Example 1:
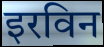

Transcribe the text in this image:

इरविन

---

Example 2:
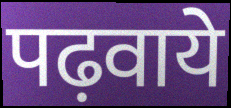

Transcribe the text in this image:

पढ़वाये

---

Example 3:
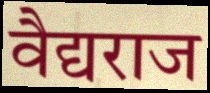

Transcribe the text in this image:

वैद्यराज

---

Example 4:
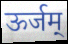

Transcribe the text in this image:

ऊर्जम्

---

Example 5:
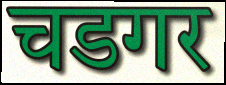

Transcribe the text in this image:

चडगर